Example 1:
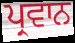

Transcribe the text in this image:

ਪ੍ਰਵਾਨ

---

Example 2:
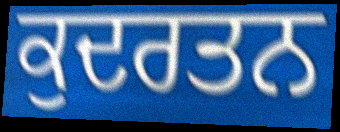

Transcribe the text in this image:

ਕੁਦਰਤਨ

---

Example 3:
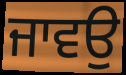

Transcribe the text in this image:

ਜਾਵਉ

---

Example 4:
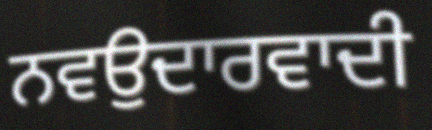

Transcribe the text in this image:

ਨਵਉਦਾਰਵਾਦੀ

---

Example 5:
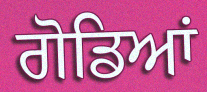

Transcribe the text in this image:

ਗੋਡਿਆਂ